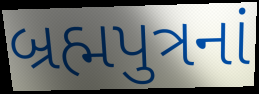
બ્રહ્મપુત્રનાં